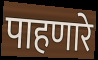
पाहणारे